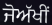
ਜੋਅੱਖੀਂ